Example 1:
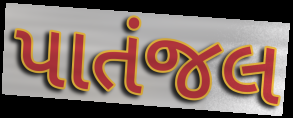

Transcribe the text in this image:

પાતંજલ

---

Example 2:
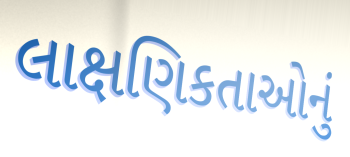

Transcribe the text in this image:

લાક્ષણિકતાઓનું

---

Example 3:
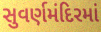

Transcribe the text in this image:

સુવર્ણમંદિરમાં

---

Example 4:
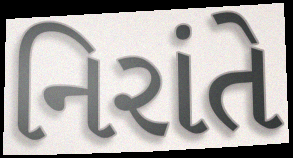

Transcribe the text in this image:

નિરાંતે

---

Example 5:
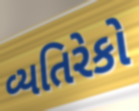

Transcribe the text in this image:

વ્યતિરેકો